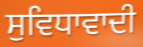
ਸੁਵਿਧਾਵਾਦੀ